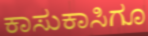
ಕಾಸುಕಾಸಿಗೂ